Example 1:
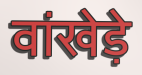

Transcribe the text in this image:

वांखेड़े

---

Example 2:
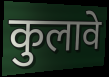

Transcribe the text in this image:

कुलावे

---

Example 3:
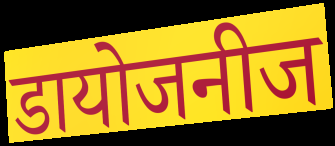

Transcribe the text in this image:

डायोजनीज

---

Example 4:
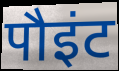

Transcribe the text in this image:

पौइंट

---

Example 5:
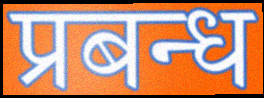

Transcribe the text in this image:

प्रबन्ध